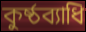
কুষ্ঠব্যাধি